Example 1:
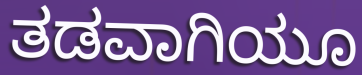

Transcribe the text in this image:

ತಡವಾಗಿಯೂ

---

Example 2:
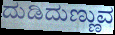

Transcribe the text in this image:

ದುಡಿದುಣ್ಣುವ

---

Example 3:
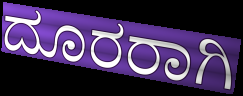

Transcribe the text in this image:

ದೂರರಾಗಿ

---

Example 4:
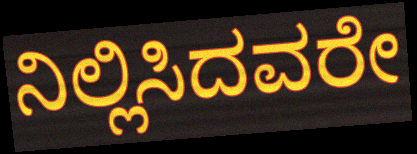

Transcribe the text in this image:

ನಿಲ್ಲಿಸಿದವರೇ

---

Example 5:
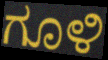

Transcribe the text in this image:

ಗೂಳಿ